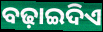
ବଢ଼ାଇଦିଏ